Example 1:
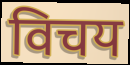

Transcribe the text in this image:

विचय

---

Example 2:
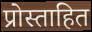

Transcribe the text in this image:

प्रोस्ताहित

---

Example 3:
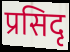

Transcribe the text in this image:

प्रसिदृ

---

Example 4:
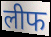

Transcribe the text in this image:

लीफ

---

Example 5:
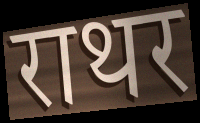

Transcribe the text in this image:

राथर